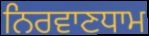
ਨਿਰਵਾਣਧਾਮ